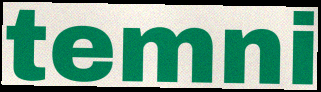
temni